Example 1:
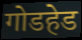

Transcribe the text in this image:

गोडहेड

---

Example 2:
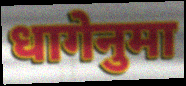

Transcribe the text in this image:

धागेनुमा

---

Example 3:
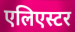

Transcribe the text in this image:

एलिएस्टर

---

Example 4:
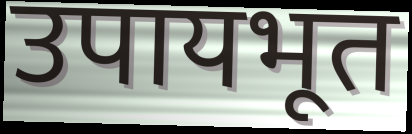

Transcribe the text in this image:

उपायभूत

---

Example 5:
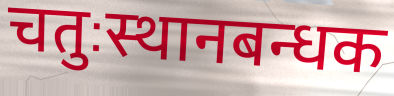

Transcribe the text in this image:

चतुःस्थानबन्धक